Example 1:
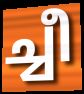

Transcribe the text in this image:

ച്ചീ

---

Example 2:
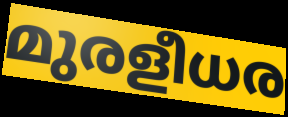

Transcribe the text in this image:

മുരളീധര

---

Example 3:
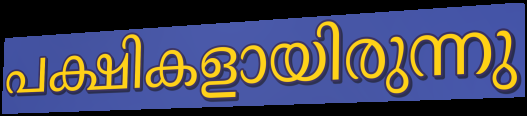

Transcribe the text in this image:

പക്ഷികളായിരുന്നു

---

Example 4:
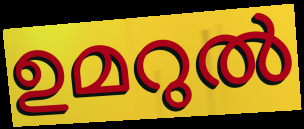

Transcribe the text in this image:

ഉമറുൽ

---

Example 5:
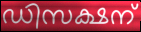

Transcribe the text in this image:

ഡിസക്ഷന്